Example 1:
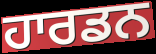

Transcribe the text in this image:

ਹਾਰਡਨ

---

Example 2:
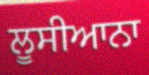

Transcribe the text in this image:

ਲੂਸੀਆਨਾ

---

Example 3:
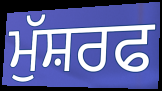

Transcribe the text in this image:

ਮੁੱਸ਼ਰਫ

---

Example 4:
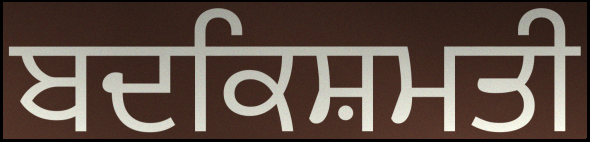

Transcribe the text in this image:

ਬਦਕਿਸ਼ਮਤੀ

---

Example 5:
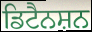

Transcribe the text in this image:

ਡਿਟੈਨਸ਼ਨ